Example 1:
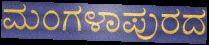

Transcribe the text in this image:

ಮಂಗಳಾಪುರದ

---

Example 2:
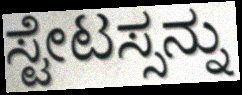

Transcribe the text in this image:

ಸ್ಟೇಟಸ್ಸನ್ನು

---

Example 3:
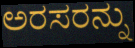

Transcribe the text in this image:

ಅರಸರನ್ನು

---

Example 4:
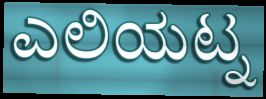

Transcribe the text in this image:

ಎಲಿಯಟ್ನ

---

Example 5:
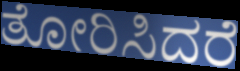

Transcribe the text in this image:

ತೋರಿಸಿದರೆ